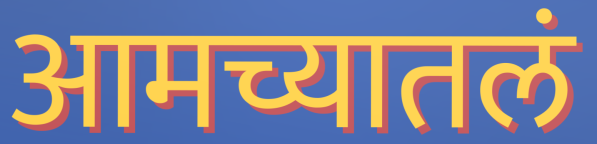
आमच्यातलं